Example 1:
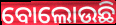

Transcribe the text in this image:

ବୋଲୋଉଛି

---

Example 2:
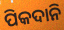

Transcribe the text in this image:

ପିକଦାନି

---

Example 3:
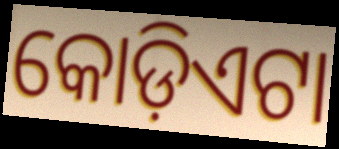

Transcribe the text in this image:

କୋଡ଼ିଏଟା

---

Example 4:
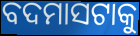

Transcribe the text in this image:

ବଦମାସଟାକୁ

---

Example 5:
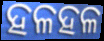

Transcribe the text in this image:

ହଳହଳ